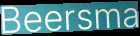
Beersma